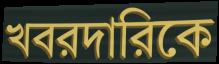
খবরদারিকে